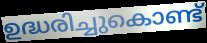
ഉദ്ധരിച്ചുകൊണ്ട്